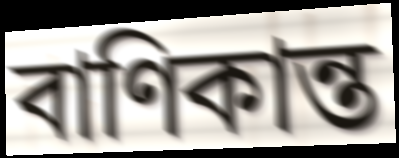
বাণিকান্ত